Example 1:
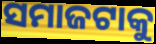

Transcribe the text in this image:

ସମାଜଟାକୁ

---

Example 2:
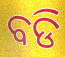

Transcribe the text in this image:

ବଡି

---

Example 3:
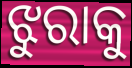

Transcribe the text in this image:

ଝୁରାକୁ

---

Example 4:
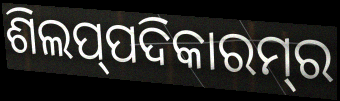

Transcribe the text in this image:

ଶିଲପ୍‍ପଦିକାରମ୍‍ର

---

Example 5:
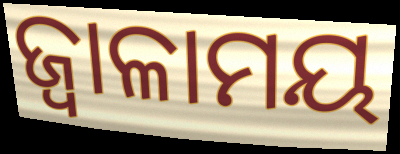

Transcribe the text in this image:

ଜ୍ୱାଳାମୟ